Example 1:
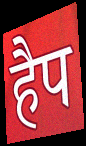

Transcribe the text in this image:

हैप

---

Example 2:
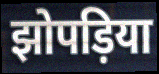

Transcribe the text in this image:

झोपड़िया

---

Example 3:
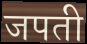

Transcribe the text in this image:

जपती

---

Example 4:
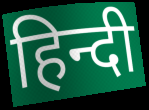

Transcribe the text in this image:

हिन्दी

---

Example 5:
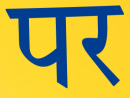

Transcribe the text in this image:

पर